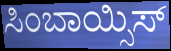
ಸಿಂಬಾಯ್ಸಿಸ್